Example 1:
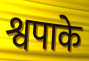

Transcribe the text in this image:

श्वपाके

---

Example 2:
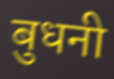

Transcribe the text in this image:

बुधनी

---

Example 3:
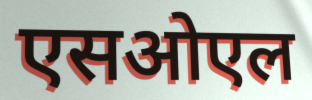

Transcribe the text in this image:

एसओएल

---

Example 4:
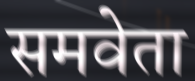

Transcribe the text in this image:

समवेता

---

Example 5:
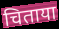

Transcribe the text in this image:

चिताया